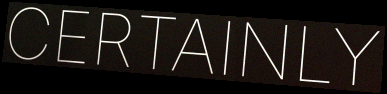
CERTAINLY